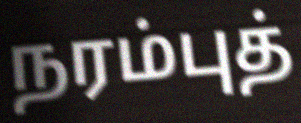
நரம்புத்